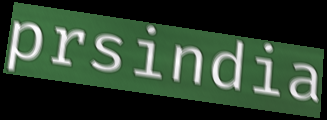
prsindia